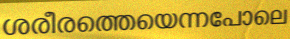
ശരീരത്തെയെന്നപോലെ